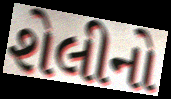
શેલીનો